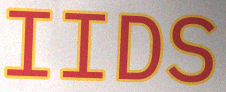
IIDS